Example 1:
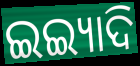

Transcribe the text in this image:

ଇଇ୍ୟାଦି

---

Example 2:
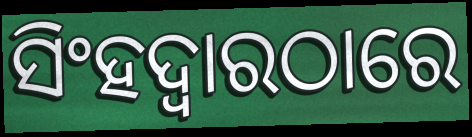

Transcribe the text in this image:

ସିଂହଦ୍ୱାରଠାରେ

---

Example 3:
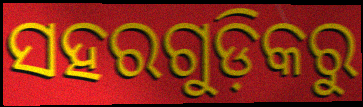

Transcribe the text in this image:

ସହରଗୁଡ଼ିକରୁ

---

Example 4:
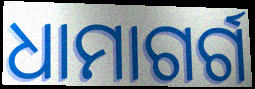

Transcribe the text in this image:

ଧାମାଗର୍ଗ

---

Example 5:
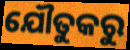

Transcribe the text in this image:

ଯୌତୁକରୁ